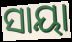
ସାୟା